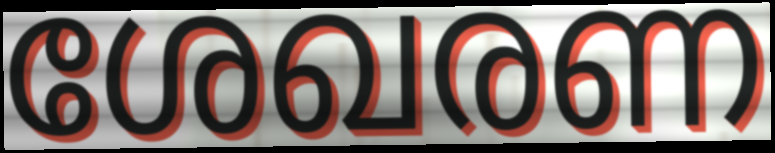
ശേഖരണ